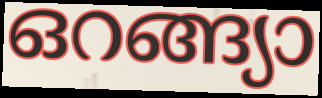
ഒറങ്ങ്യാ